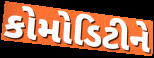
કોમોડિટીને